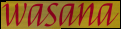
wasana